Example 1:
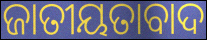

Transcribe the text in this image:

ଜାତୀୟତାବାଦ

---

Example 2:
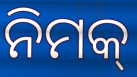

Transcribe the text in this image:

ନିମକ୍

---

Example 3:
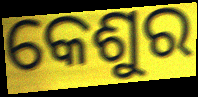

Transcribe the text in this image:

କେଶୁର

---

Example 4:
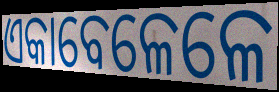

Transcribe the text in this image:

ଏକାବେଳେଳେ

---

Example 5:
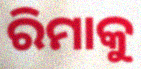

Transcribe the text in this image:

ରିମାକୁ